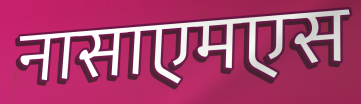
नासाएमएस